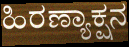
ಹಿರಣ್ಯಾಕ್ಷನ